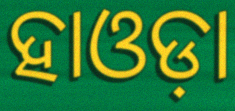
ହାଓଡ଼ା